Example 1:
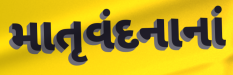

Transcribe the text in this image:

માતૃવંદનાનાં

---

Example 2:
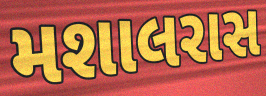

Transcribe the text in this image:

મશાલરાસ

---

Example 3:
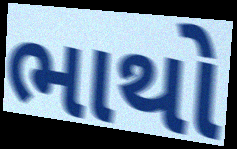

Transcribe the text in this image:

ભાથો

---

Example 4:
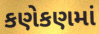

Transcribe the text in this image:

કણેકણમાં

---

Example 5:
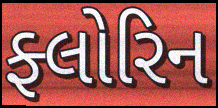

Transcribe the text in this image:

ફ્લોરિન